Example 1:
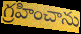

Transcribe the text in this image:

గ్రహించాను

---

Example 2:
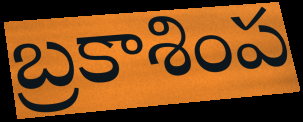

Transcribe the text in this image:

బ్రకాశింప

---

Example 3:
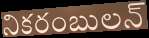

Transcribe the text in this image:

నికరంబులన్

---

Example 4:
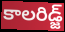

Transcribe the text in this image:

కాలరిడ్జ్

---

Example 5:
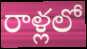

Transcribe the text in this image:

రాళ్లలో